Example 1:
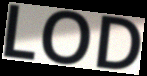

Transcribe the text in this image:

LOD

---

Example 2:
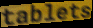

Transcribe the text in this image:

tablets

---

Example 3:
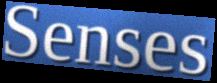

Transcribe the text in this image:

Senses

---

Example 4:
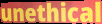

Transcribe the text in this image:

unethical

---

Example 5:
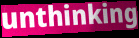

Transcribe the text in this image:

unthinking